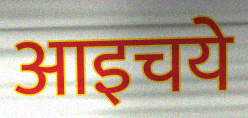
आइचये